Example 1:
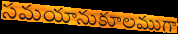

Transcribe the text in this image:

సమయానుకూలముగా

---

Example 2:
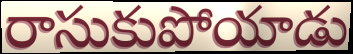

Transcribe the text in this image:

రాసుకుపోయాడు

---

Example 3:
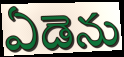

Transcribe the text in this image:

ఏడెను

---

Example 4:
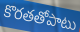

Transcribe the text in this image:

కొరతతోపాటు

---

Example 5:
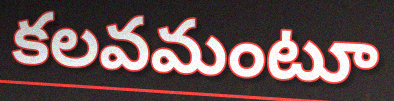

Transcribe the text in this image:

కలవమంటూ